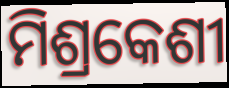
ମିଶ୍ରକେଶୀ